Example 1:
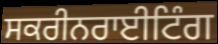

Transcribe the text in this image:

ਸਕਰੀਨਰਾਈਟਿੰਗ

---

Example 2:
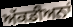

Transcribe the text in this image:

ਅੱਕਡੀਅਨਾਂ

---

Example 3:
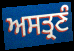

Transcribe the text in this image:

ਅਸਤ੍ਰਣੰ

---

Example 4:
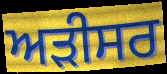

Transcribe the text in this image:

ਅੜੀਸਰ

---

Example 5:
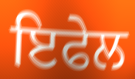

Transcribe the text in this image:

ਇਫੇਲ